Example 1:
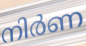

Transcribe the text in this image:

നിർണ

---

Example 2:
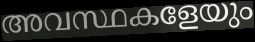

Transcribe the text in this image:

അവസ്ഥകളേയും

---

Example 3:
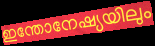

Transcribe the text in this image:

ഇന്തോനേഷ്യയിലും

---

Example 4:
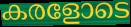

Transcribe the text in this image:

കരളോടെ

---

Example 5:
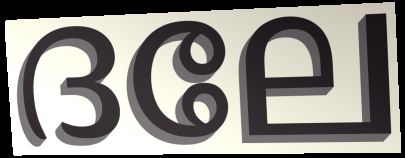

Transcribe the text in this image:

ദലേ